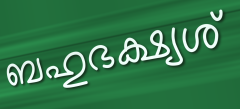
ബഹുഭക്ഷ്യശ്